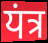
यंत्र